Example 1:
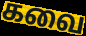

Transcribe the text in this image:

கவை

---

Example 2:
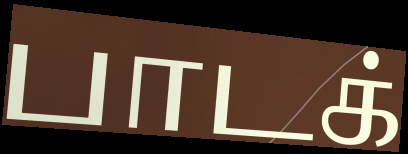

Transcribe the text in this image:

பாடக்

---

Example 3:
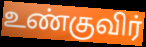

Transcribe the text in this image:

உண்குவிர்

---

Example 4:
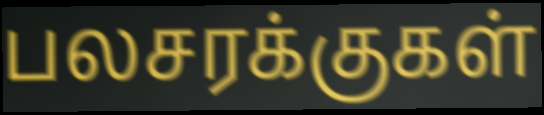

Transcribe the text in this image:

பலசரக்குகள்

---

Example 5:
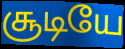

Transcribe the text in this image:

சூடியே